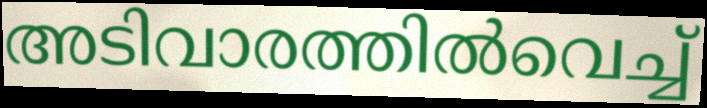
അടിവാരത്തിൽവെച്ച്